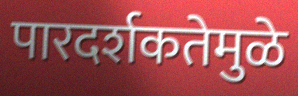
पारदर्शकतेमुळे